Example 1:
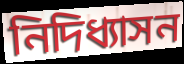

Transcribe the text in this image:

নিদিধ্যাসন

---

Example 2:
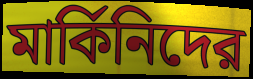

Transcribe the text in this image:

মার্কিনিদের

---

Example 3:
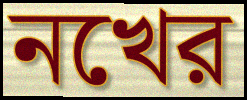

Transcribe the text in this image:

নখের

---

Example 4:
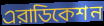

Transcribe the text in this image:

এরাডিকেশন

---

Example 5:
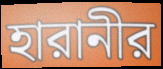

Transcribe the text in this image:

হারানীর